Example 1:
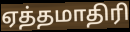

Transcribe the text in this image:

ஏத்தமாதிரி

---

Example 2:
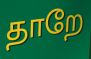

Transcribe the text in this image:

தாறே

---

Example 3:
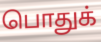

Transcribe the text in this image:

பொதுக்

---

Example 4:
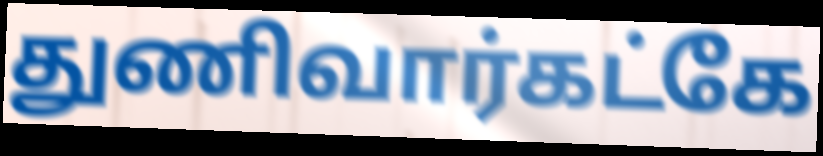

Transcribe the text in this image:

துணிவார்கட்கே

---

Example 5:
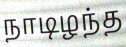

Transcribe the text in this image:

நாடிழந்த